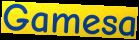
Gamesa